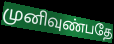
முனிவுண்பதே